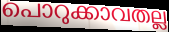
പൊറുക്കാവതല്ല